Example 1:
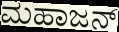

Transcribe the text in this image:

ಮಹಾಜನ್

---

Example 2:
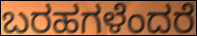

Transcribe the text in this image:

ಬರಹಗಳೆಂದರೆ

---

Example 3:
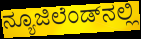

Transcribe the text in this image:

ನ್ಯೂಜಿಲೆಂಡ್‌ನಲ್ಲಿ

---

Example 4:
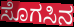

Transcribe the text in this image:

ಸೊಗಸಿನ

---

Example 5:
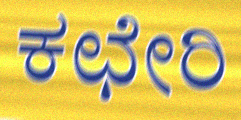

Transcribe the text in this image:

ಕಛೇರಿ